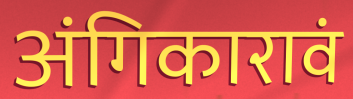
अंगिकारावं